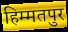
हिम्मतपुर